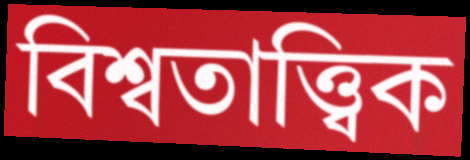
বিশ্বতাত্ত্বিক